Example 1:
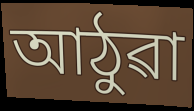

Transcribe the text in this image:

আঠুৱা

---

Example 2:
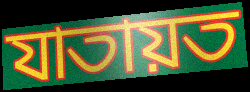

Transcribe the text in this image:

যাতায়ত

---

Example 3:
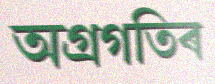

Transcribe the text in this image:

অগ্ৰগতিৰ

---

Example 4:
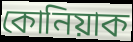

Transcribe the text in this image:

কোনিয়াক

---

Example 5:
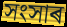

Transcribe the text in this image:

সংসাৰ